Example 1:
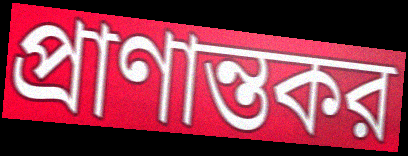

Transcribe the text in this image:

প্রাণান্তকর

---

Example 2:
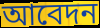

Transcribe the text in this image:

আবেদন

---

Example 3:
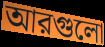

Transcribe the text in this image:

আরগুলো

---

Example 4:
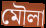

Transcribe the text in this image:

মৌলা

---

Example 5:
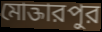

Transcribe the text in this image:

মোক্তারপুর